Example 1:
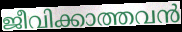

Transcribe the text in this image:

ജീവിക്കാത്തവൻ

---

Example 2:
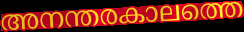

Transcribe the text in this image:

അനന്തരകാലത്തെ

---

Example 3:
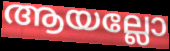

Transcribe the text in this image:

ആയല്ലോ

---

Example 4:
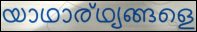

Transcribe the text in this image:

യാഥാര്ഥ്യങ്ങളെ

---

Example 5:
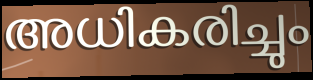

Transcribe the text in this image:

അധികരിച്ചും